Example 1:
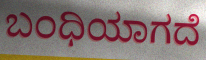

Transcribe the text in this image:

ಬಂಧಿಯಾಗದೆ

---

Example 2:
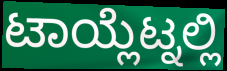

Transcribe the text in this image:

ಟಾಯ್ಲೆಟ್ನಲ್ಲಿ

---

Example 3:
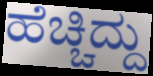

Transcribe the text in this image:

ಹೆಚ್ಚಿದ್ದು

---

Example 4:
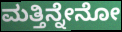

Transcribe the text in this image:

ಮತ್ತಿನ್ನೇನೋ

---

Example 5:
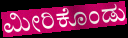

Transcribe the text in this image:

ಮೀರಿಕೊಂಡು